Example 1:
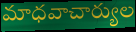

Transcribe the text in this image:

మాధవాచార్యుల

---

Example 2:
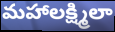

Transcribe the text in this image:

మహాలక్ష్మిలా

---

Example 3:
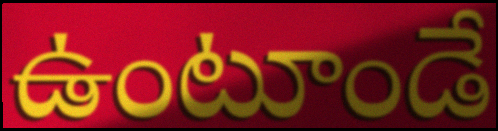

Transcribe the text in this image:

ఉంటూండే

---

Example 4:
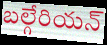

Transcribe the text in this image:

బల్గేరియన్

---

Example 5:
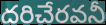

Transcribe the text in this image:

దరిచేరవనీ